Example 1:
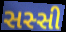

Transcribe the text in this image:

સસ્સી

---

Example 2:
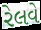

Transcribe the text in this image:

રેલવે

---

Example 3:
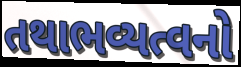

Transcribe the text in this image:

તથાભવ્યત્વનો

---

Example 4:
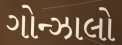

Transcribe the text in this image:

ગોન્ઝાલો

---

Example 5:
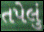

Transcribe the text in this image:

તપેલું